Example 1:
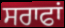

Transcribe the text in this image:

ਸਰਾਫਾਂ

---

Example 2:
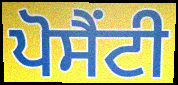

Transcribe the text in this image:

ਪੋਸੈਂਟੀ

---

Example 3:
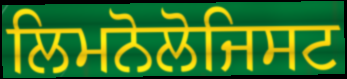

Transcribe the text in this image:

ਲਿਮਨੋਲੋਜਿਸਟ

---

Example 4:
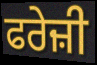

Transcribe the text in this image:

ਫਰੇਜ਼ੀ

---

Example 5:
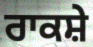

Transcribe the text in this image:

ਰਾਕਸ਼ੇ